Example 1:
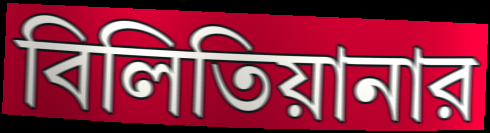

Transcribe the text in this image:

বিলিতিয়ানার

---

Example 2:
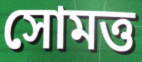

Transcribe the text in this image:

সোমত্ত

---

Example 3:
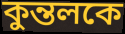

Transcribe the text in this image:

কুন্তলকে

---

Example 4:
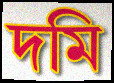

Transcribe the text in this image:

দমি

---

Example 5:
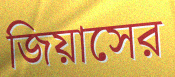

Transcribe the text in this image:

জিয়াসের